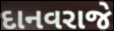
દાનવરાજે